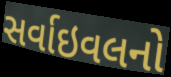
સર્વાઇવલનો